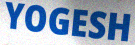
YOGESH